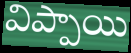
విప్పాయి